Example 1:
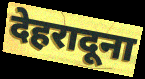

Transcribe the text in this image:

देहरादूना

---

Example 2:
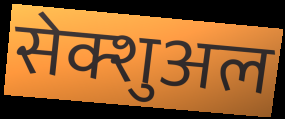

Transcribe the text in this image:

सेक्शुअल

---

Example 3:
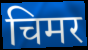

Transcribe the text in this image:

चिमर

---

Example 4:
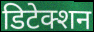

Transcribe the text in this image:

डिटेक्शन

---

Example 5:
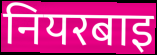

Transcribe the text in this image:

नियरबाइ